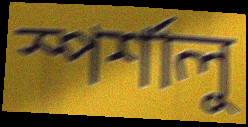
স্পর্শালু